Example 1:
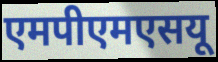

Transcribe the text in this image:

एमपीएमएसयू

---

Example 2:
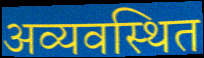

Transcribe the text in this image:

अव्यवस्थित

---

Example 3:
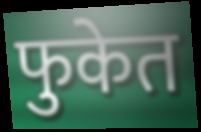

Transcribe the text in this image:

फुकेत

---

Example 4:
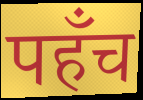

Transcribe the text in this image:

पहँच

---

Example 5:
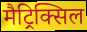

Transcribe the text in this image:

मैट्रिक्सिल